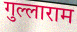
गुल्लाराम